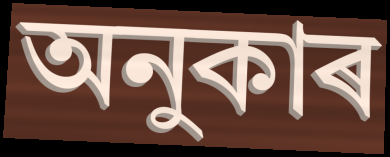
অনুকাৰ